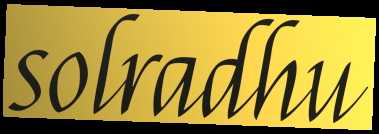
solradhu